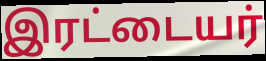
இரட்டையர்